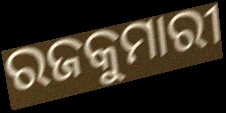
ରଜକୁମାରୀ